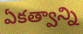
ఏకత్వాన్ని